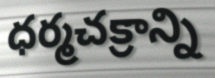
ధర్మచక్రాన్ని